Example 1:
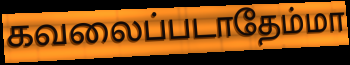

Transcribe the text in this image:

கவலைப்படாதேம்மா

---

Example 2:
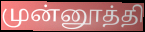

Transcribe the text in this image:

முன்னூத்தி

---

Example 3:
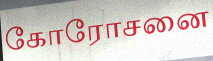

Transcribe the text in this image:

கோரோசனை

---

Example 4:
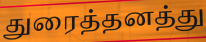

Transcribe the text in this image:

துரைத்தனத்து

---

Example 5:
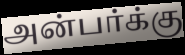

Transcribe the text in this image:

அன்பர்க்கு